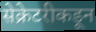
सेक्रेटरीकडून